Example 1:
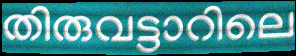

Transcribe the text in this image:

തിരുവട്ടാറിലെ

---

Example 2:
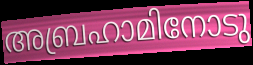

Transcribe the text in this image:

അബ്രഹാമിനോടു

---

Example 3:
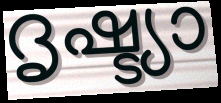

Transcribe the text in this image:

ദൃഷ്ട്യാ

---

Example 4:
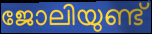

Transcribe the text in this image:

ജോലിയുണ്ട്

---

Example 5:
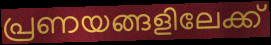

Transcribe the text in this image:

പ്രണയങ്ങളിലേക്ക്